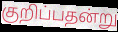
குறிப்பதன்று